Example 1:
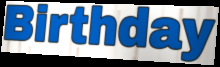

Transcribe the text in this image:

Birthday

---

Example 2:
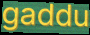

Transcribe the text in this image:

gaddu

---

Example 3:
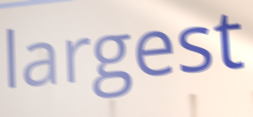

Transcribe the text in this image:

largest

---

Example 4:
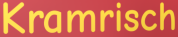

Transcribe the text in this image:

Kramrisch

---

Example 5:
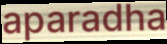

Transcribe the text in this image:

aparadha